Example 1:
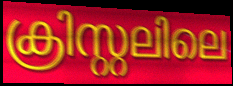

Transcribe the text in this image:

ക്രിസ്റ്റലിലെ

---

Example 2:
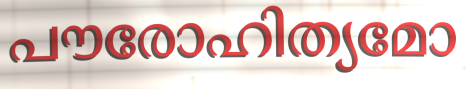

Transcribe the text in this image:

പൗരോഹിത്യമോ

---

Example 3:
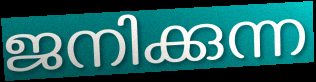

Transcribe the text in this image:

ജനിക്കുന്ന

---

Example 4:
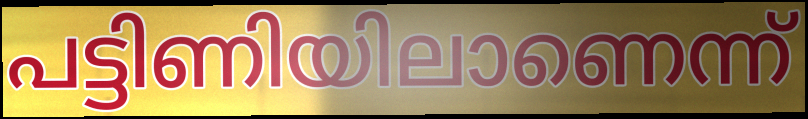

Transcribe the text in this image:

പട്ടിണിയിലാണെന്ന്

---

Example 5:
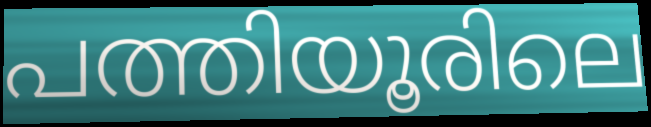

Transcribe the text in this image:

പത്തിയൂരിലെ